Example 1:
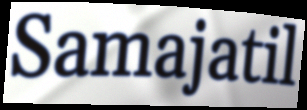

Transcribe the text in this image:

Samajatil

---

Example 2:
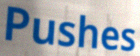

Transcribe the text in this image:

Pushes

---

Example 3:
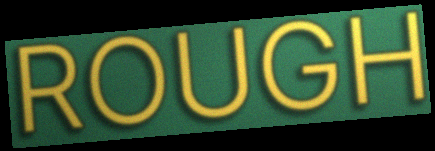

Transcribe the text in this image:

ROUGH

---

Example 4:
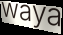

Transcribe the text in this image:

waya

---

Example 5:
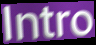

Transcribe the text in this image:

Intro